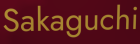
Sakaguchi